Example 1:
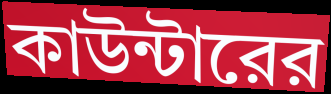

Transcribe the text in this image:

কাউন্টারের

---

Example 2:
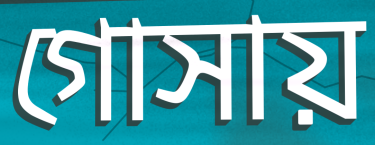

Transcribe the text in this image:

গোসায়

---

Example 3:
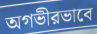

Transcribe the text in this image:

অগভীরভাবে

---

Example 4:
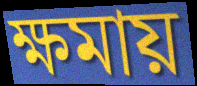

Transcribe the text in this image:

ক্ষমায়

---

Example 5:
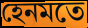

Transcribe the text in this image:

হেনমতে